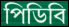
পিডিবি